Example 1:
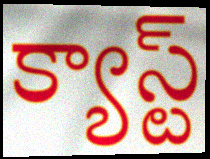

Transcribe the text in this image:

క్యాస్ట్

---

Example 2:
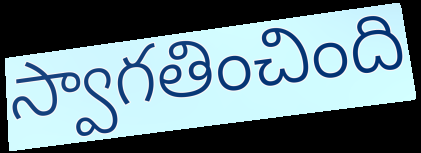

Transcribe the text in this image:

స్వాగతించింది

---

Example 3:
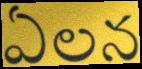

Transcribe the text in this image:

ఏలన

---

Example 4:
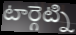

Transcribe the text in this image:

టార్గెట్ని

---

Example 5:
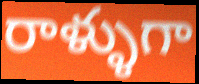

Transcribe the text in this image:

రాళ్ళుగా